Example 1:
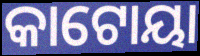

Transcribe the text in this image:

କାଟୋୟା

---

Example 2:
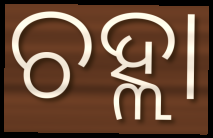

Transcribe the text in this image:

ଚହ୍ଲା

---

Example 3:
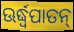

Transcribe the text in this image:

ଊର୍ଦ୍ଧ୍ବପାତନ୍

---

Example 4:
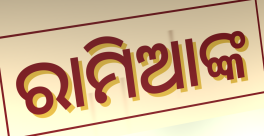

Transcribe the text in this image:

ରାମିଆଙ୍କ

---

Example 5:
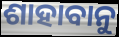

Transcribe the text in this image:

ଶାହାବାନୁ